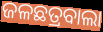
ଜଳଛତ୍ରବାଲା